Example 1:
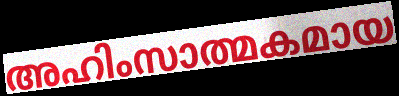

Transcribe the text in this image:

അഹിംസാത്മകമായ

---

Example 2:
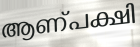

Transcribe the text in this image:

ആണ്പക്ഷി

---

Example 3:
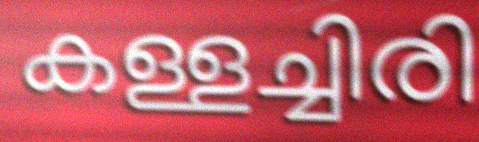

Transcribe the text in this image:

കള്ളച്ചിരി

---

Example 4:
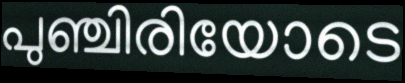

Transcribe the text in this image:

പുഞ്ചിരിയോടെ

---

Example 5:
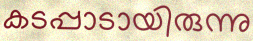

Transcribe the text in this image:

കടപ്പാടായിരുന്നു